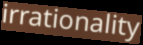
irrationality